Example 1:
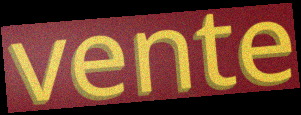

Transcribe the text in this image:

vente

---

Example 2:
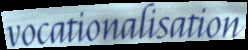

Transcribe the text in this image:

vocationalisation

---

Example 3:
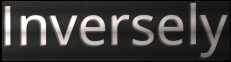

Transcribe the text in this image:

Inversely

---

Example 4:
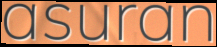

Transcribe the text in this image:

asuran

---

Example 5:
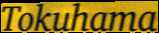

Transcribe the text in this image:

Tokuhama